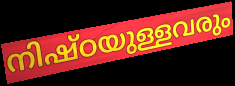
നിഷ്ഠയുള്ളവരും